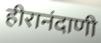
हीरानंदाणी